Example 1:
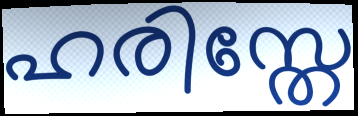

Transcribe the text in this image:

ഹരിസ്തേ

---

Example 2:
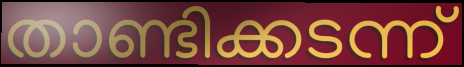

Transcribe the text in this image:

താണ്ടിക്കടന്ന്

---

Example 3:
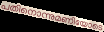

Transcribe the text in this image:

പതിനൊന്നുമണിയോടെ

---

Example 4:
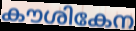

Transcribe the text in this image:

കൗശികേന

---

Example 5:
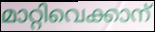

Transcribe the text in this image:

മാറ്റിവെക്കാന്